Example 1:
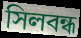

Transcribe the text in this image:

সিলবন্ধ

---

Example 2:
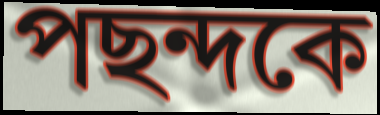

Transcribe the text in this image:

পছন্দকে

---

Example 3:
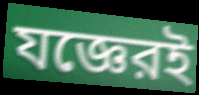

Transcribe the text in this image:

যজ্ঞেরই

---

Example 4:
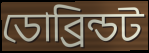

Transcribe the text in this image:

ডোব্রিন্ডট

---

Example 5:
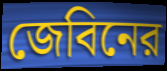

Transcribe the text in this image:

জেবিনের